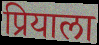
प्रियाला